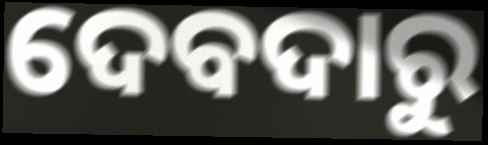
ଦେବଦାରୁ